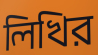
লিখির